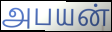
அபயன்